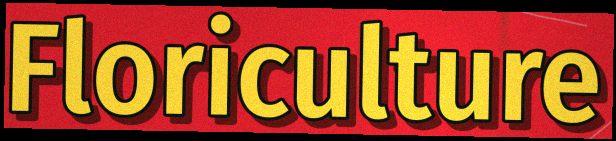
Floriculture